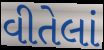
વીતેલાં